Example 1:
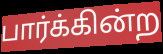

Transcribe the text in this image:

பார்க்கின்ற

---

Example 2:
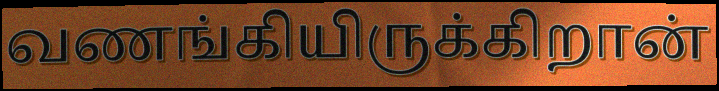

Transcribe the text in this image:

வணங்கியிருக்கிறான்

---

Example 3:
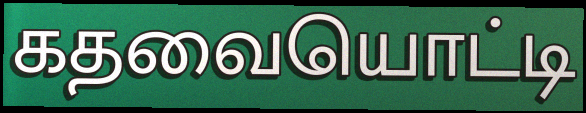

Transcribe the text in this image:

கதவையொட்டி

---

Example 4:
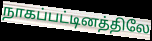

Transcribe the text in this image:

நாகப்பட்டினத்திலே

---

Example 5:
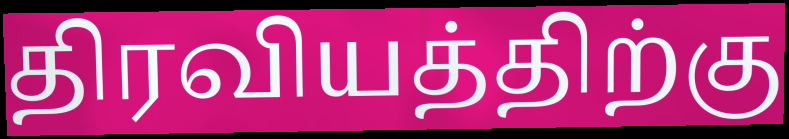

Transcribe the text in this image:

திரவியத்திற்கு